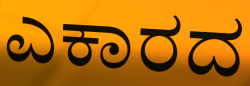
ಎಕಾರದ